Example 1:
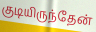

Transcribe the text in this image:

குடியிருந்தேன்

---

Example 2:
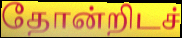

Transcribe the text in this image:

தோன்றிடச்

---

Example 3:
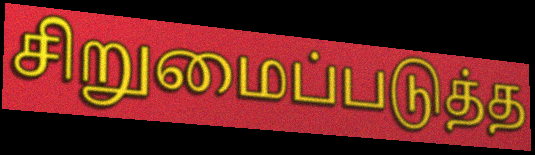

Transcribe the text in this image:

சிறுமைப்படுத்த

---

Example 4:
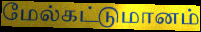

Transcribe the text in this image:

மேல்கட்டுமானம்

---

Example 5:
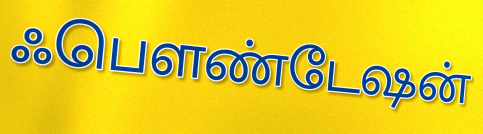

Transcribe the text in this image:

ஃபௌண்டேஷன்